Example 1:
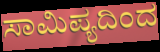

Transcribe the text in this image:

ಸಾಮಿಪ್ಯದಿಂದ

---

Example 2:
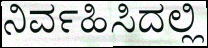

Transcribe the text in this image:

ನಿರ್ವಹಿಸಿದಲ್ಲಿ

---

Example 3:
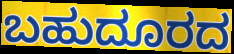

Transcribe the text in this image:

ಬಹುದೂರದ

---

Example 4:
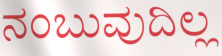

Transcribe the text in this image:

ನಂಬುವುದಿಲ್ಲ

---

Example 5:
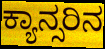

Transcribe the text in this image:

ಕ್ಯಾನ್ಸರಿನ